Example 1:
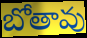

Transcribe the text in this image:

బోతావు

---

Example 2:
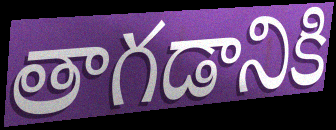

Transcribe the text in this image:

తాగడానికి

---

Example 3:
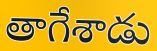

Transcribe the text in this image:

తాగేశాడు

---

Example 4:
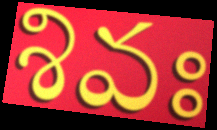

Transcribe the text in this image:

శివః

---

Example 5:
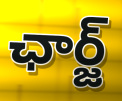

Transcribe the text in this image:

ఛార్జ్